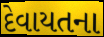
દેવાયતના